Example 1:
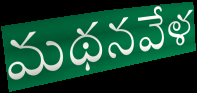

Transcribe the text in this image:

మథనవేళ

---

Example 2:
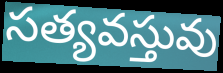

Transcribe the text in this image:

సత్యవస్తువు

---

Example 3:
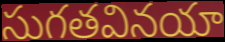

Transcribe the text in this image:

సుగతవినయా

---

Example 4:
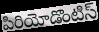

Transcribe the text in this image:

పిరియోడొంటిస్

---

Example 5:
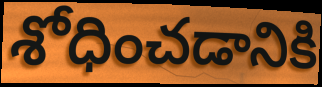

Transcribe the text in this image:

శోధించడానికి